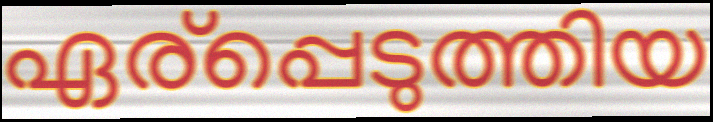
ഏര്പ്പെടുത്തിയ